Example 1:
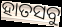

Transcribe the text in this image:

ହାତସବୁ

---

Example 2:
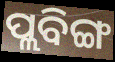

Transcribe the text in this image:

ପ୍ଲବିଙ୍ଗ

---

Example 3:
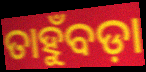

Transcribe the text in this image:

ତାହୁଁବଡ଼ା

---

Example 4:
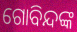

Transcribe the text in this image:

ଗୋବିନ୍ଦଙ୍କ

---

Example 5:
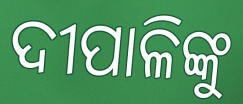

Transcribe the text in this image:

ଦୀପାଳିଙ୍କୁ